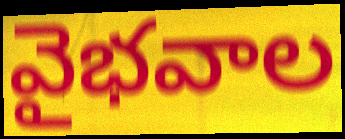
వైభవాల